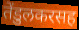
तेंडुलकरसह